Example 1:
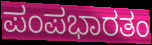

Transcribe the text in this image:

ಪಂಪಭಾರತಂ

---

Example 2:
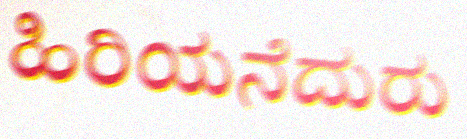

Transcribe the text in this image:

ಹಿರಿಯನೆದುರು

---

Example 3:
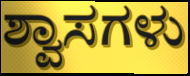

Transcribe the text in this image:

ಶ್ವಾಸಗಳು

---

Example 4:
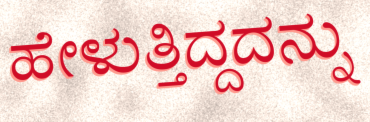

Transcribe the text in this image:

ಹೇಳುತ್ತಿದ್ದದನ್ನು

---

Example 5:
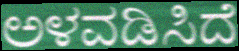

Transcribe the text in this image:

ಅಳವಡಿಸಿದೆ